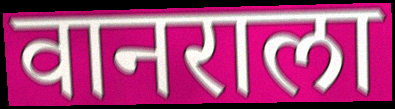
वानराला